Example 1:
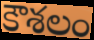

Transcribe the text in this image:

కౌశలం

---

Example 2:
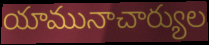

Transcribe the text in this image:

యామునాచార్యుల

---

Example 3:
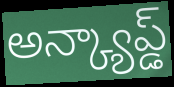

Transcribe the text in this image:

అన్క్యాప్డ్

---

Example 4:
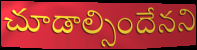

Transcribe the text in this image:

చూడాల్సిందేనని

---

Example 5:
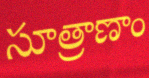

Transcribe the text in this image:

సూత్రాణాం